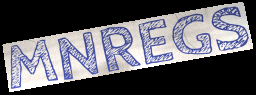
MNREGS